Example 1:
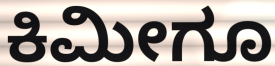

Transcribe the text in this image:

ಕಿಮೀಗೂ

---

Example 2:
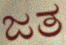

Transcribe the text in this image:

ಜತ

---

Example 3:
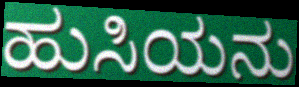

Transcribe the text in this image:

ಹುಸಿಯನು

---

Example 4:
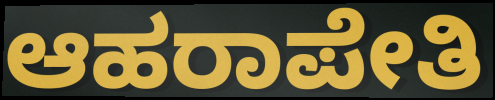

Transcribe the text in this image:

ಆಹರಾಪೇತಿ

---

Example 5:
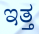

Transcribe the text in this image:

ಇತ್ತ